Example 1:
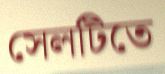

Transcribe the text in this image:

সেলটিতে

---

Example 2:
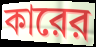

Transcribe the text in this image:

কারের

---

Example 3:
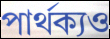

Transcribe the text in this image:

পার্থক্যও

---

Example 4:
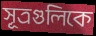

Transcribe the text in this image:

সূত্রগুলিকে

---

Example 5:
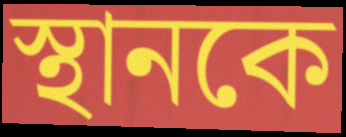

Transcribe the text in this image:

স্থানকে